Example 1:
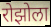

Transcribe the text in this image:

रोझोला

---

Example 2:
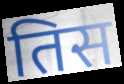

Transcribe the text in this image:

तिस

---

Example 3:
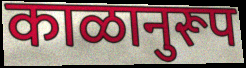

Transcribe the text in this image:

काळानुरूप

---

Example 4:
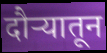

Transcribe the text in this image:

दौऱ्यातून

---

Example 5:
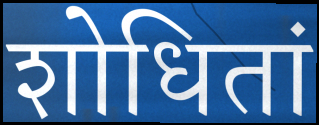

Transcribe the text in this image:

शोधितां